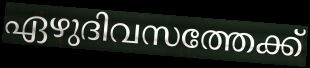
ഏഴുദിവസത്തേക്ക്